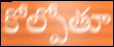
కోల్పోతూ